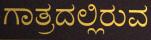
ಗಾತ್ರದಲ್ಲಿರುವ